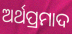
ଅର୍ଥପ୍ରମାଦ